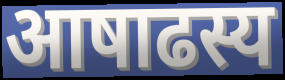
आषाढस्य